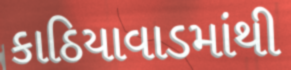
કાઠિયાવાડમાંથી